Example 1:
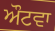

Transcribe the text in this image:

ਔਟਵਾ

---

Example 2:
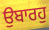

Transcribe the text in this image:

ਉਬਾਰਹੁ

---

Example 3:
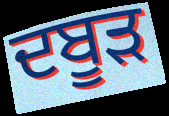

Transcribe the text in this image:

ਦਬੂੜ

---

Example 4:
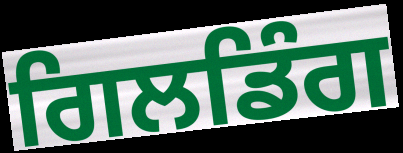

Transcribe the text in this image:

ਗਿਲਡਿੰਗ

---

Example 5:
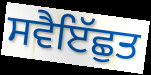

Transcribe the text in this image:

ਸਵੈਇੱਛੁਤ